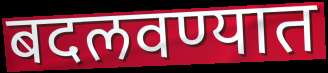
बदलवण्यात